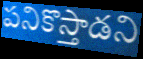
పనికొస్తాడని